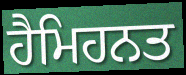
ਹੈਮਿਹਨਤ